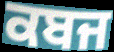
ਕਬਜ